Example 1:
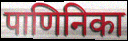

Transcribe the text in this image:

पाणिनिका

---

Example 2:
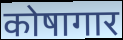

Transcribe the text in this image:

कोषागार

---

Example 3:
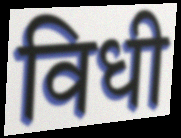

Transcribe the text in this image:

विधी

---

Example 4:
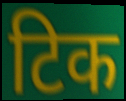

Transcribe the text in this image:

टिक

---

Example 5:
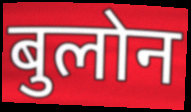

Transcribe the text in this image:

बुलोन